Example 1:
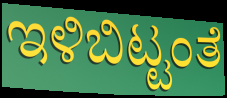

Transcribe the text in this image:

ಇಳಿಬಿಟ್ಟಂತೆ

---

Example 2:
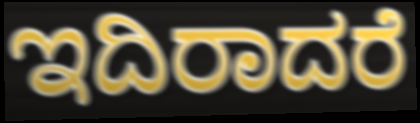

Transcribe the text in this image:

ಇದಿರಾದರೆ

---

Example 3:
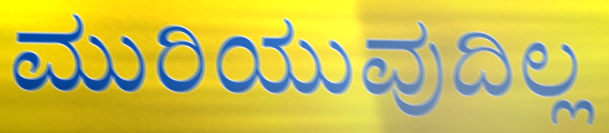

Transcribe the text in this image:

ಮುರಿಯುವುದಿಲ್ಲ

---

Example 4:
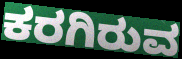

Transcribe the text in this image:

ಕರಗಿರುವ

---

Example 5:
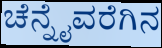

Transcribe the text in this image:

ಚೆನ್ನೈವರೆಗಿನ